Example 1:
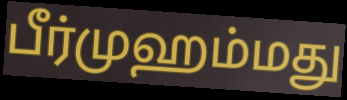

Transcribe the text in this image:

பீர்முஹம்மது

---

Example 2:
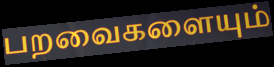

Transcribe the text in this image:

பறவைகளையும்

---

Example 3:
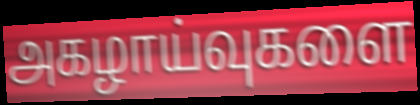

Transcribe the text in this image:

அகழாய்வுகளை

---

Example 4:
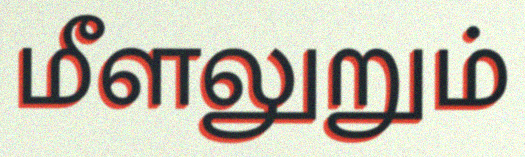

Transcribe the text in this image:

மீளலுறும்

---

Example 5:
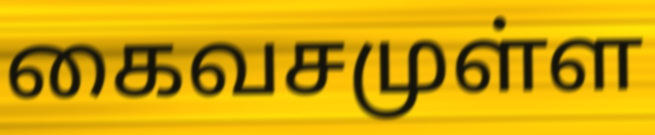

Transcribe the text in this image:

கைவசமுள்ள